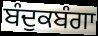
ਬੰਦੁਕਬੰਗਾ